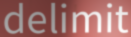
delimit